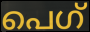
പെഗ്